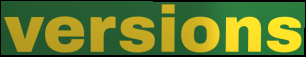
versions